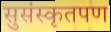
सुसंस्कृतपण